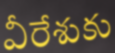
వీరేశుకు